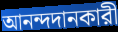
আনন্দদানকারী